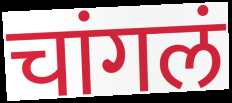
चांगलं